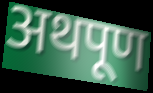
अथपूण